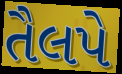
તૈલપે